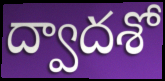
ద్వాదశో